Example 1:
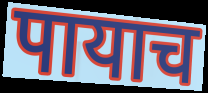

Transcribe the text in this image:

पायाच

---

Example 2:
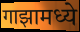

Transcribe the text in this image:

गाझामध्ये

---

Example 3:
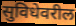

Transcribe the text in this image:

सुविधेवरील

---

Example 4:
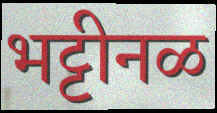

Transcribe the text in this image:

भट्टीनळ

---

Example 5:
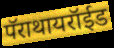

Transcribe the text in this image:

पॅराथायरॉईड